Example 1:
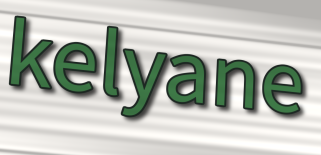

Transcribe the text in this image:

kelyane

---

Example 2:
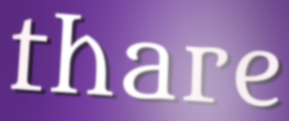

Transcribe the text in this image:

thare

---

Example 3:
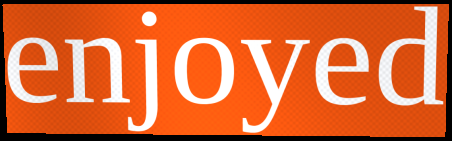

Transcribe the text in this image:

enjoyed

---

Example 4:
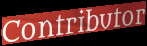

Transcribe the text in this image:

Contributor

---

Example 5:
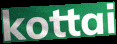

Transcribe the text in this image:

kottai